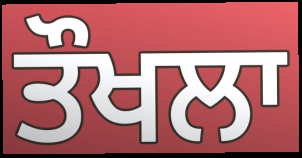
ਤੌਖਲਾ